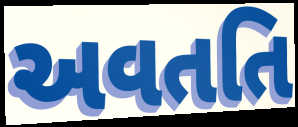
અવતતિ